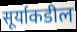
सूर्याकडील